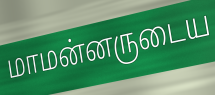
மாமன்னருடைய